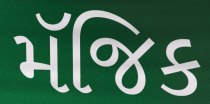
મૅજિક